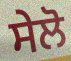
ਸੇਲੋ